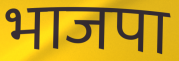
भाजपा